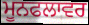
ਮੂਨਫਲਾਵਰ